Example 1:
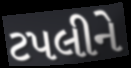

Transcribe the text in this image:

ટપલીને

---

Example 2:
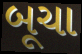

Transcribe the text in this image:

બૂચા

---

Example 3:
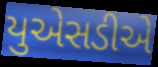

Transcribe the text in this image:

યુએસડીએ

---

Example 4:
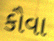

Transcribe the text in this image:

કૌવા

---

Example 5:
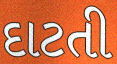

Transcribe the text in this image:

દાટતી